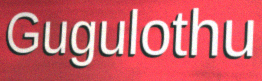
Gugulothu